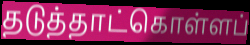
தடுத்தாட்கொள்ளப்